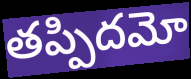
తప్పిదమో